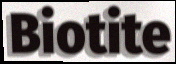
Biotite